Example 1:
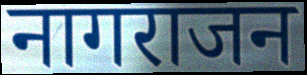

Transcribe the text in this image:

नागराजन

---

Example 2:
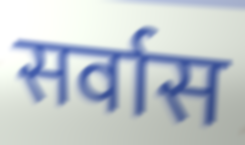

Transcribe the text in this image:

सर्वास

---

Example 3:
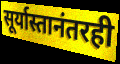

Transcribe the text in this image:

सूर्यास्तानंतरही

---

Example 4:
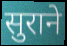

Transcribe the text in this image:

सुराने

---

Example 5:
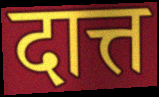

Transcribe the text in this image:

दात्त